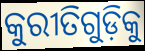
କୁରୀତିଗୁଡ଼ିକୁ